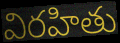
విరహితు